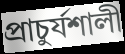
প্রাচুর্যশালী